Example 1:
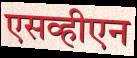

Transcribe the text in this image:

एसव्हीएन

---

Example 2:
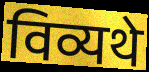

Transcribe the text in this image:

विव्यथे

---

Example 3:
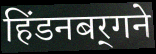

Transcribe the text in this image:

हिंडनबर्गने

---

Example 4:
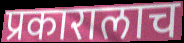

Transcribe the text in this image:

प्रकारालाच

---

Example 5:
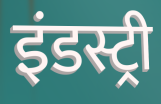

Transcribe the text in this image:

इंडस्ट्री